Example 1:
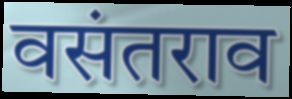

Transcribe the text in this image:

वसंतराव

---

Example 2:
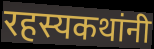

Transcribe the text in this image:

रहस्यकथांनी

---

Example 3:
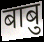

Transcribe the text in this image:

बाबु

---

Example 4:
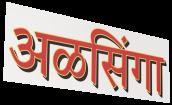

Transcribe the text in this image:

अळसिंगा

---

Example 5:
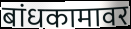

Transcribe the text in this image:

बांधकामावर